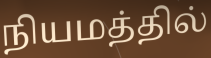
நியமத்தில்